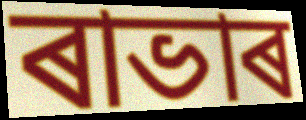
ৰাভাৰ